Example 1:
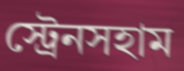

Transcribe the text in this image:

স্ট্রেনসহাম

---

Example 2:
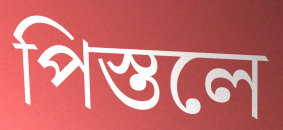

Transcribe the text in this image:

পিস্তলে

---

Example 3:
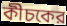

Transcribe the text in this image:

কীচকের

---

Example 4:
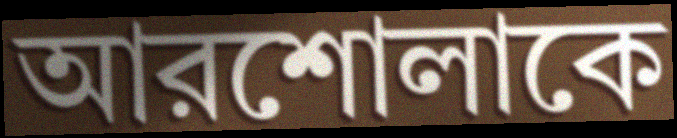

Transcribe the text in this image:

আরশোলাকে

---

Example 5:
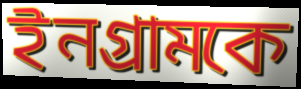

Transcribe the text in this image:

ইনগ্রামকে